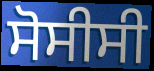
ਸੋਸੀਸੀ